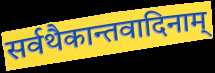
सर्वथैकान्तवादिनाम्